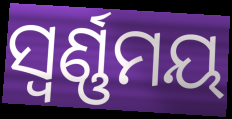
ସ୍ୱର୍ଣ୍ଣମୟ